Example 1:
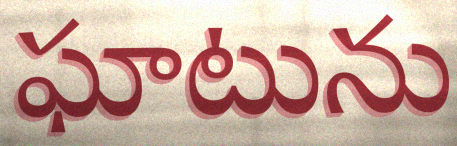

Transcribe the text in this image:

ఘాటును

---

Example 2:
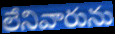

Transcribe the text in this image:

లేనివారును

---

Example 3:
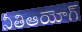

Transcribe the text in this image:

నీతిఆయోగ్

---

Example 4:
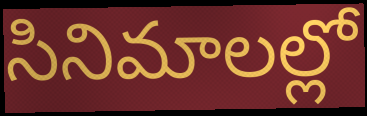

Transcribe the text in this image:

సినిమాలల్లో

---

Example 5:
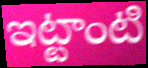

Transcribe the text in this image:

ఇట్టాంటి